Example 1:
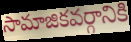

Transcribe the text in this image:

సామాజికవర్గానికి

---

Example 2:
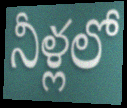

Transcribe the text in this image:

నీళ్లలో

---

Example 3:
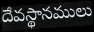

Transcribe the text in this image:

దేవస్థానములు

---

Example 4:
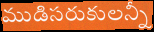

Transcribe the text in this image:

ముడిసరుకులన్నీ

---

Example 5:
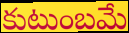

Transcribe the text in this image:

కుటుంబమే